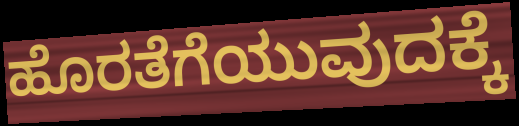
ಹೊರತೆಗೆಯುವುದಕ್ಕೆ